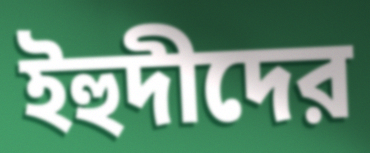
ইহুদীদের